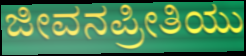
ಜೀವನಪ್ರೀತಿಯು